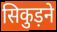
सिकुड़ने